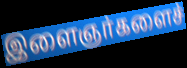
இளைஞர்களைச்